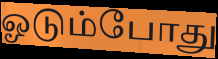
ஓடும்போது